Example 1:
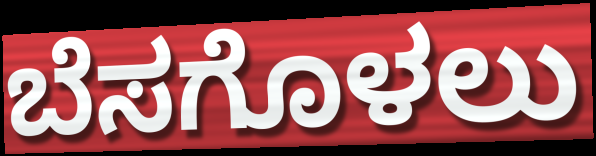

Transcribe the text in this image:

ಬೆಸಗೊಳಲು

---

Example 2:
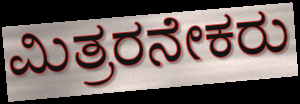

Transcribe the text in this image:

ಮಿತ್ರರನೇಕರು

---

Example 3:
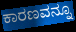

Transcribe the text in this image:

ಕಾರಣವನ್ನೂ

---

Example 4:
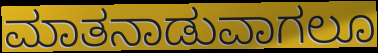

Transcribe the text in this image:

ಮಾತನಾಡುವಾಗಲೂ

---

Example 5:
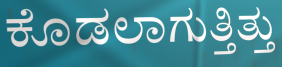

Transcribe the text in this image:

ಕೊಡಲಾಗುತ್ತಿತ್ತು